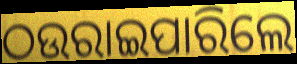
ଠଉରାଇପାରିଲେ